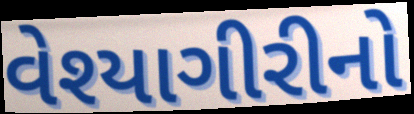
વેશ્યાગીરીનો